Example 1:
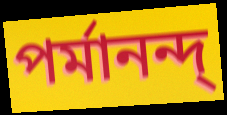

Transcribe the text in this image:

পর্মানন্দ্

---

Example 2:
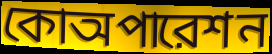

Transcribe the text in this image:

কোঅপারেশন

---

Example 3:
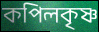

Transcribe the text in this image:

কপিলকৃষ্ণ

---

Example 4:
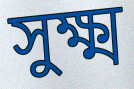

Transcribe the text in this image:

সুক্ষ্ম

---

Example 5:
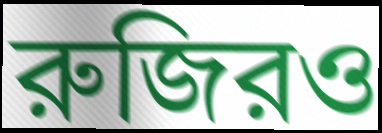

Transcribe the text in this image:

রুজিরও